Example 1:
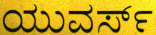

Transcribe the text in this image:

ಯುವರ್ಸ್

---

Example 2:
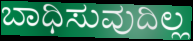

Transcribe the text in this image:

ಬಾಧಿಸುವುದಿಲ್ಲ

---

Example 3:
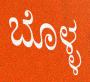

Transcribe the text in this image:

ಬೊಳ್ಳ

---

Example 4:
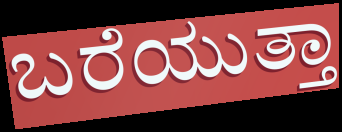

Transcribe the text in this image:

ಬರೆಯುತ್ತಾ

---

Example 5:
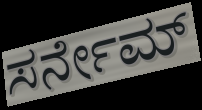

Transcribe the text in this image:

ಸರ್ನೇಮ್